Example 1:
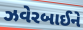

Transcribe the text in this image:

ઝવેરબાઈને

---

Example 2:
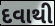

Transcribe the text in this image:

દવાથી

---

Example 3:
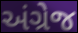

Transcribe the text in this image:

અંગ્રેજ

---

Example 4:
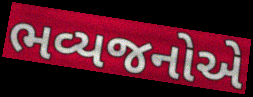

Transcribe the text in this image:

ભવ્યજનોએ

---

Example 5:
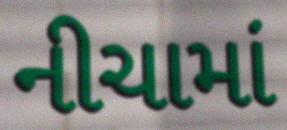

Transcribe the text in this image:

નીચામાં